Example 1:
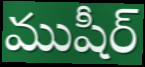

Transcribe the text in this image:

ముషీర్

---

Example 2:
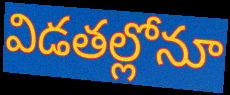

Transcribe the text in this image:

విడతల్లోనూ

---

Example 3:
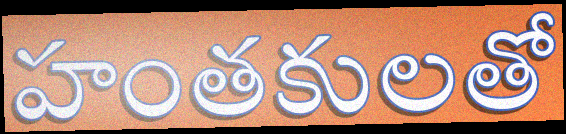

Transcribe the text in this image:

హంతకులతో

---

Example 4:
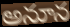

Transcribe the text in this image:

అనూన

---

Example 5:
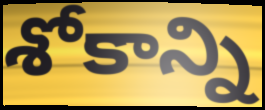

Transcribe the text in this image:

శోకాన్ని